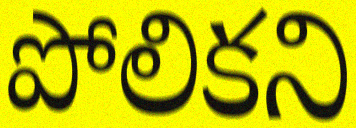
పోలికని